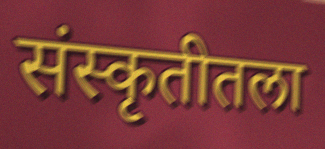
संस्कृतीतला